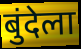
बुंदेला